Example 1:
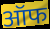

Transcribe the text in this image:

ऑफ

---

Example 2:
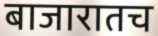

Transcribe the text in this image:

बाजारातच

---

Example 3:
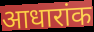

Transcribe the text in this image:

आधारांक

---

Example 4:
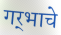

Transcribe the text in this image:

गर्भाचे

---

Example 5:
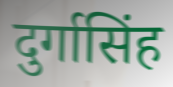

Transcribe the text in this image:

दुर्गासिंह